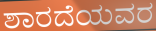
ಶಾರದೆಯವರ